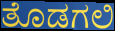
ತೊಡಗಲಿ